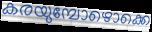
കരയുമ്പോഴൊക്കെ